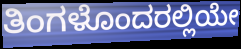
ತಿಂಗಳೊಂದರಲ್ಲಿಯೇ